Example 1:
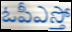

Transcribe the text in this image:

ఓపీఎస్తో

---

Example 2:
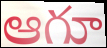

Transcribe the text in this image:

ఆగూ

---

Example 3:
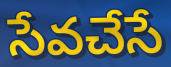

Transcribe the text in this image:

సేవచేసే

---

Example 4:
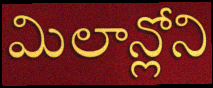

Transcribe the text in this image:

మిలాన్లోని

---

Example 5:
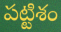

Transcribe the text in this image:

పట్టిశం